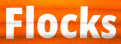
Flocks